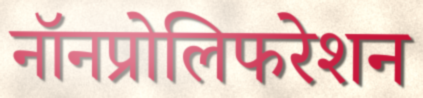
नॉनप्रोलिफरेशन